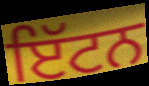
ਇੱਟਨ